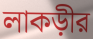
লাকড়ীর